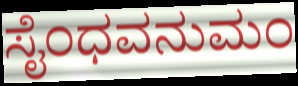
ಸೈಂಧವನುಮಂ